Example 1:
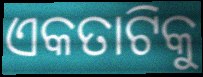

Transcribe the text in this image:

ଏକତାଟିକୁ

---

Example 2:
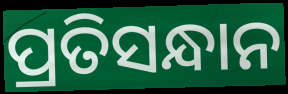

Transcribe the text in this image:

ପ୍ରତିସନ୍ଧାନ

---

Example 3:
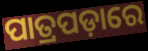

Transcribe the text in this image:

ପାତ୍ରପଡ଼ାରେ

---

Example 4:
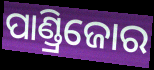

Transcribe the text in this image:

ପାଣ୍ଡ୍ରିଜୋର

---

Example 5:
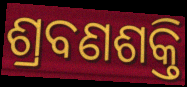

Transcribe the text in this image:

ଶ୍ରବଣଶକ୍ତି